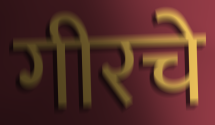
गीरचे